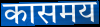
कासमय